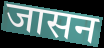
जासन